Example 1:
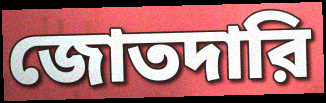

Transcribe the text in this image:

জোতদারি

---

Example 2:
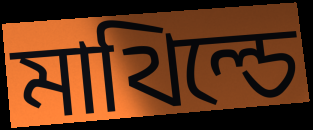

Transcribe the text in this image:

মাথিল্ডে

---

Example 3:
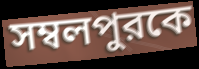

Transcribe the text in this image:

সম্বলপুরকে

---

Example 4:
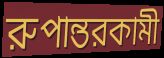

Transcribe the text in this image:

রুপান্তরকামী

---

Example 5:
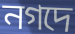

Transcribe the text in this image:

নগদে